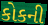
કોકની